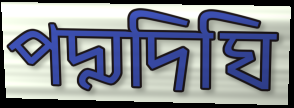
পদ্মদিঘি